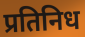
प्रतिनिध